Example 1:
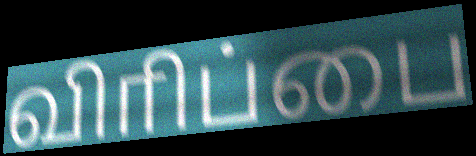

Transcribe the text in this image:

விரிப்பை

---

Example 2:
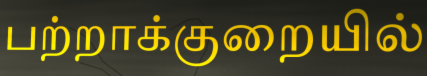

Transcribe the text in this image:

பற்றாக்குறையில்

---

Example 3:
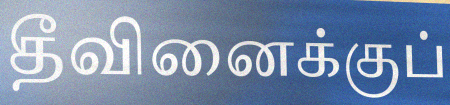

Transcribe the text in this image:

தீவினைக்குப்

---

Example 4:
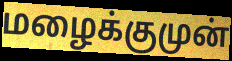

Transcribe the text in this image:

மழைக்குமுன்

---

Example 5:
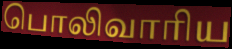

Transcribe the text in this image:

பொலிவாரிய